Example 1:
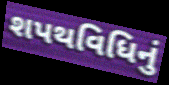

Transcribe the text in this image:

શપથવિધિનું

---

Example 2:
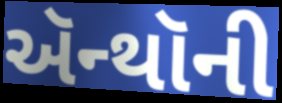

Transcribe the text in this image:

ઍન્થૉની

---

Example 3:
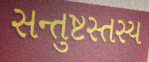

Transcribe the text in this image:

સન્તુષ્ટસ્તસ્ય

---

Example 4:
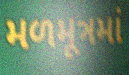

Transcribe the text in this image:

મળમૂત્રમાં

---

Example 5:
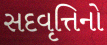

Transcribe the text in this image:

સદવૃત્તિનો